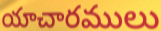
యాచారములు